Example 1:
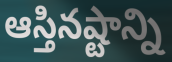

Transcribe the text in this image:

ఆస్తినష్టాన్ని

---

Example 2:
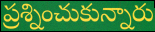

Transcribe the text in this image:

ప్రశ్నించుకున్నారు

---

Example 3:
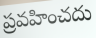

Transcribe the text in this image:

ప్రవహించదు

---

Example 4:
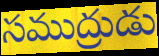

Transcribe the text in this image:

సముద్రుడు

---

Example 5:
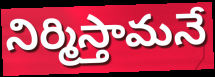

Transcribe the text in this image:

నిర్మిస్తామనే